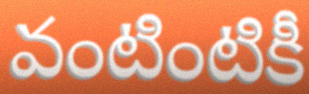
వంటింటికీ